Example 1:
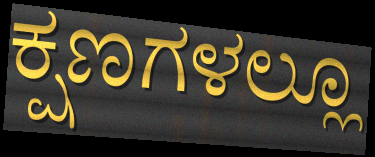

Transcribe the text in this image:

ಕ್ಷಣಗಳಲ್ಲೂ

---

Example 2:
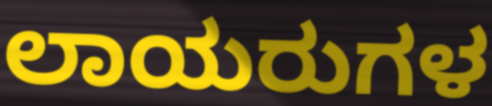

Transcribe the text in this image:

ಲಾಯರುಗಳ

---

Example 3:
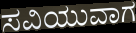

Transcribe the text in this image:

ಸವಿಯುವಾಗ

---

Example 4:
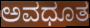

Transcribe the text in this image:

ಅವಧೂತ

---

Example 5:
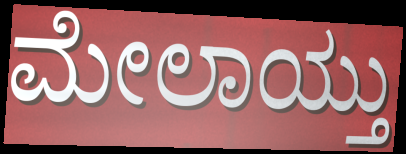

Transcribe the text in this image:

ಮೇಲಾಯ್ತು